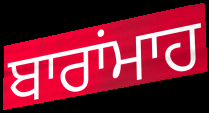
ਬਾਰਾਂਮਾਹ